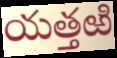
యత్తఱి